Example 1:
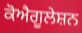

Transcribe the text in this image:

ਕੋਐਗੂਲੇਸ਼ਨ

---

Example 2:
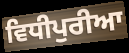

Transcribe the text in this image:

ਵਿਧੀਪੁਰੀਆ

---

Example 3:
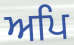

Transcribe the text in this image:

ਅਪਿ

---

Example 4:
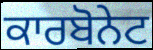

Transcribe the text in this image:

ਕਾਰਬੋਨੇਟ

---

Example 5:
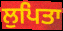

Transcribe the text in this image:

ਲੁਪਿਤਾ